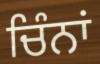
ਚਿੰਨਾਂ